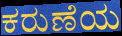
ಕರುಣೆಯ